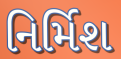
નિર્મિશ